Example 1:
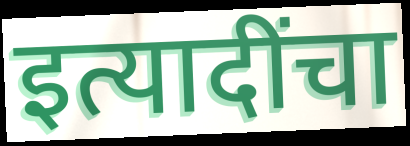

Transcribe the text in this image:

इत्यादींचा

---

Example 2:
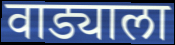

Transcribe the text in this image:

वाड्याला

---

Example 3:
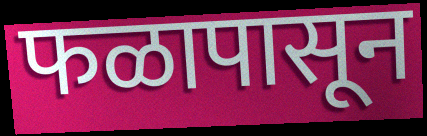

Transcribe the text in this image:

फळापासून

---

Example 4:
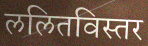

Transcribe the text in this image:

ललितविस्तर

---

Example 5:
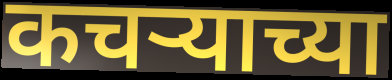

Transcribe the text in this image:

कचर्‍याच्या